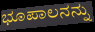
ಭೂಪಾಲನನ್ನು